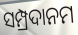
ସମ୍ପ୍ରଦାନମ